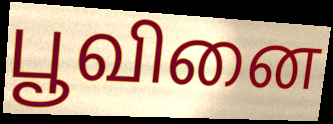
பூவினை